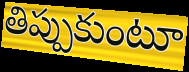
తిప్పుకుంటూ